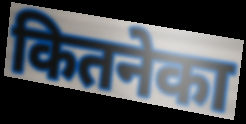
कितनेका